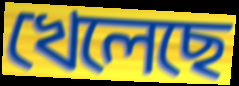
খেলেছে